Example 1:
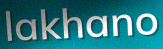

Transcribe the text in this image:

lakhano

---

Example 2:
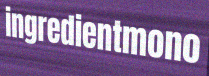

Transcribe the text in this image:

ingredientmono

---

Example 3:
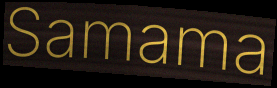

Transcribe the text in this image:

Samama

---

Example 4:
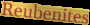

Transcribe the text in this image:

Reubenites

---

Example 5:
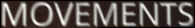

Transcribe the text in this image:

MOVEMENTS